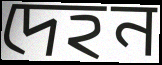
দেহন